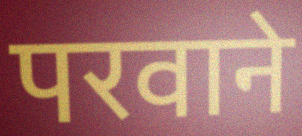
परवाने